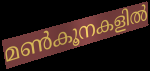
മൺകൂനകളിൽ